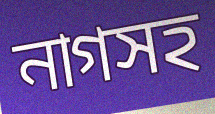
নাগসহ